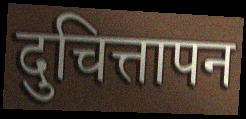
दुचित्तापन